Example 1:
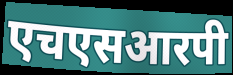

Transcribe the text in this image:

एचएसआरपी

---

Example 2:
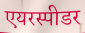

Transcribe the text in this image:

एयरस्पीडर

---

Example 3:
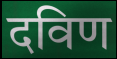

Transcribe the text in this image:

दविण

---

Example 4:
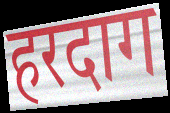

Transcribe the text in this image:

हरदाग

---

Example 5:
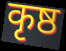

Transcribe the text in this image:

कृष्ठ